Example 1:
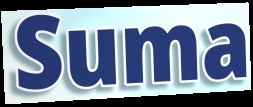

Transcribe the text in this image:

Suma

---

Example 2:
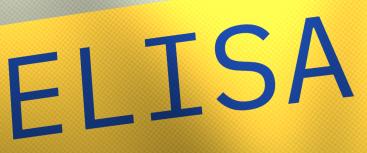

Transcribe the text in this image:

ELISA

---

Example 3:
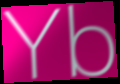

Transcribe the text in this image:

Yb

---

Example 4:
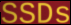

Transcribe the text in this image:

SSDs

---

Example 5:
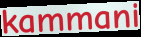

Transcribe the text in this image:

kammani